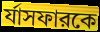
র্যাসফারকে